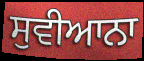
ਸੁਵੀਆਨਾ